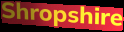
Shropshire